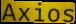
Axios